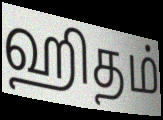
ஹிதம்